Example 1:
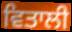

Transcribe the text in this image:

ਵਿਤਾਲੀ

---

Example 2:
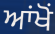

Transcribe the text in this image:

ਆਂਖੋਂ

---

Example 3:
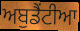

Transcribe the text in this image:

ਅਬੁਡੈਂਟੀਆ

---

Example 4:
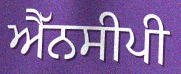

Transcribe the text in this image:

ਐੱਨਸੀਪੀ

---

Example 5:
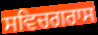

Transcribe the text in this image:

ਸਵਿਚਗਰਾਸ